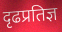
दृढप्रतिज्ञ